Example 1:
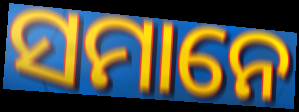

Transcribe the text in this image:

ସମାନେ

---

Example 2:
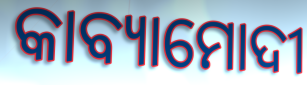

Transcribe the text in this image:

କାବ୍ୟାମୋଦୀ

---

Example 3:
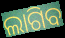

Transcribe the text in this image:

ଲାଗିବ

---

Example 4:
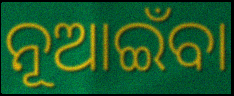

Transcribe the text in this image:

ନୂଆଇଁବା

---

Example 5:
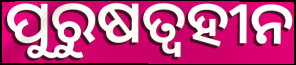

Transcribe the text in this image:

ପୁରୁଷତ୍ୱହୀନ